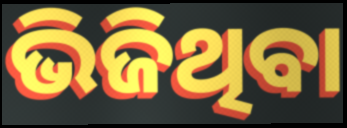
ଭିଜିଥିବା